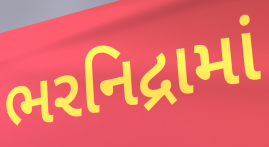
ભરનિદ્રામાં